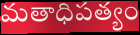
మతాధిపత్యం